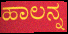
ಹಾಲನ್ನ